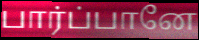
பார்ப்பானே